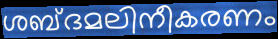
ശബ്ദമലിനീകരണം